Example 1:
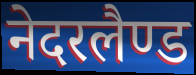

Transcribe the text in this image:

नेदरलैण्ड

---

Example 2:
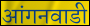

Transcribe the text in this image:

आंगनवाडी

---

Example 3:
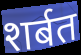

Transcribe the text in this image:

शर्बत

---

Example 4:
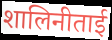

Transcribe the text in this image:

शालिनीताई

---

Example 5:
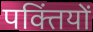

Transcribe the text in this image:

पक्तिंयों